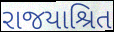
રાજયાશ્રિત